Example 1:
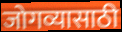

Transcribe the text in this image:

जोगव्यासाठी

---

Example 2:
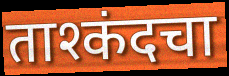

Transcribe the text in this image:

ताश्कंदचा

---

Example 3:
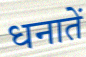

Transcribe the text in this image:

धनातें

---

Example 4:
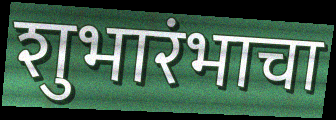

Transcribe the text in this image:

शुभारंभाचा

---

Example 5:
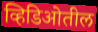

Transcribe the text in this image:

व्हिडिओतील